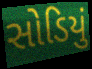
સોડિયું